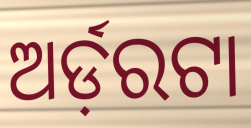
ଅର୍ଡ଼ରଟା